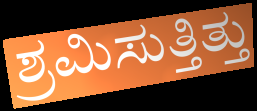
ಶ್ರಮಿಸುತ್ತಿತ್ತು